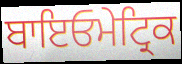
ਬਾਇਓਮੇਟ੍ਰਿਕ